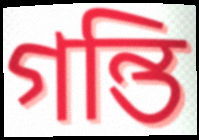
গন্তি